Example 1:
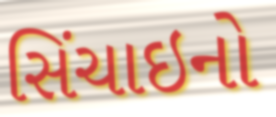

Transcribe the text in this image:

સિંચાઇનો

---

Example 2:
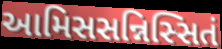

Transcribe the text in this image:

આમિસસન્નિસ્સિતં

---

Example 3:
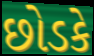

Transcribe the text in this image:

છોડકે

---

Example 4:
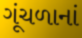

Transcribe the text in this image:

ગૂંચળાનાં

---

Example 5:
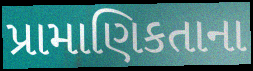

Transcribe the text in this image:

પ્રામાણિકતાના